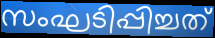
സംഘടിപ്പിച്ചത്